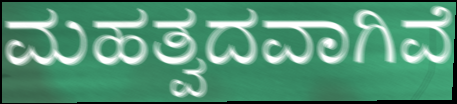
ಮಹತ್ವದವಾಗಿವೆ